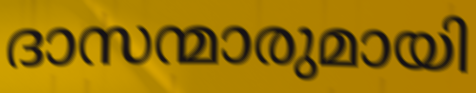
ദാസന്മാരുമായി